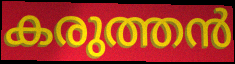
കരുത്തൻ